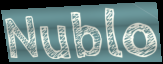
Nublo